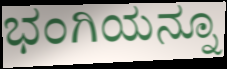
ಭಂಗಿಯನ್ನೂ